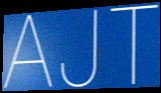
AJT